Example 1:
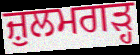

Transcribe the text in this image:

ਜ਼ੁਲਮਗੜ੍ਹ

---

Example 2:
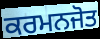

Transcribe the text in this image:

ਕਰਮਨਜੋਤ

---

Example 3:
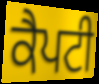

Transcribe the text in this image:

ਕੈਪਟੀ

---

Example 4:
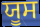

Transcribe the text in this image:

ਯੂਸ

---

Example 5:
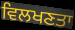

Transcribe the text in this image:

ਵਿਲਖਣਤਾ